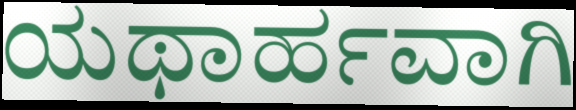
ಯಥಾರ್ಹವಾಗಿ